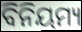
ବିନିୟମ୍ୟ